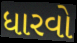
ધારવો